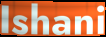
Ishani